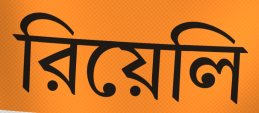
রিয়েলি